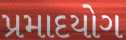
પ્રમાદયોગ